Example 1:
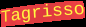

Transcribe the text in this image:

Tagrisso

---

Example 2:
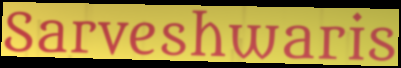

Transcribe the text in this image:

Sarveshwaris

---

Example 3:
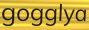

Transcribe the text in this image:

gogglya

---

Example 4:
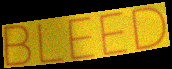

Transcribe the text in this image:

BLEED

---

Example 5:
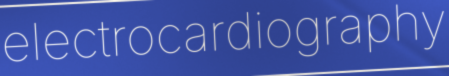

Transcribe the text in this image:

electrocardiography